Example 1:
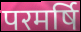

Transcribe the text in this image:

परमर्षि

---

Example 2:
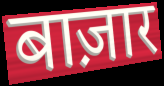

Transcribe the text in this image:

बाज़ार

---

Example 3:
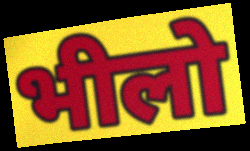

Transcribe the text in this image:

भीलो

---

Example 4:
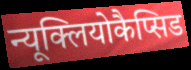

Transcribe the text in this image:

न्यूक्लियोकैप्सिड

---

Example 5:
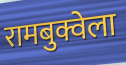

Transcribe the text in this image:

रामबुक्वेला